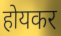
होयकर